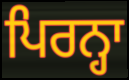
ਪਿਰਨ੍ਹਾ